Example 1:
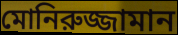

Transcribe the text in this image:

মোনিরুজ্জামান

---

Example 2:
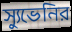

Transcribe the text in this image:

স্যুভেনির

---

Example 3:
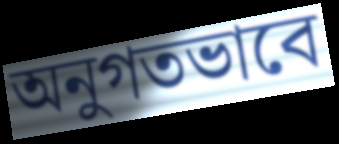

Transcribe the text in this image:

অনুগতভাবে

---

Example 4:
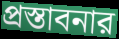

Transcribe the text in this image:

প্রস্তাবনার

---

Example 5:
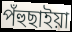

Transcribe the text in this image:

পঁহুছাইয়া